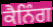
ਕੈਨਿੰਗ